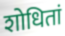
शोधितां